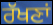
ਰੱਖਣਾਂ